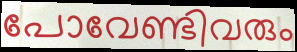
പോവേണ്ടിവരും